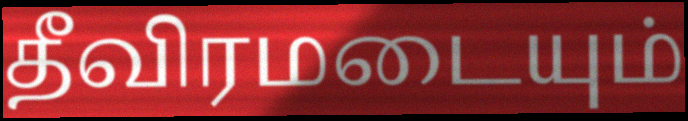
தீவிரமடையும்